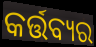
କର୍ତ୍ତବ୍ୟର